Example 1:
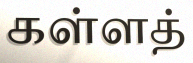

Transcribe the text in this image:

கள்ளத்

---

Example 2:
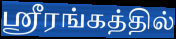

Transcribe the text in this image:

ஸ்ரீரங்கத்தில்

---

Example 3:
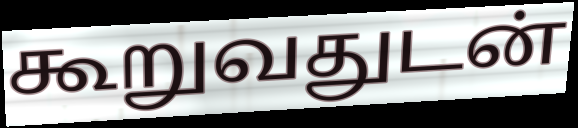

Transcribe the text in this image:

கூறுவதுடன்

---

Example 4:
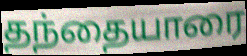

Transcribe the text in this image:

தந்தையாரை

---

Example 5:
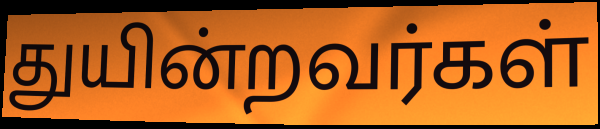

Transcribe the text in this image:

துயின்றவர்கள்